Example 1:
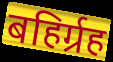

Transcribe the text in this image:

बहिर्ग्रह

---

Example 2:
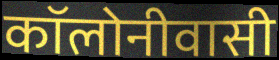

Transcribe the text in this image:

कॉलोनीवासी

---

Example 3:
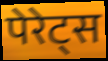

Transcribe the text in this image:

पेरेट्स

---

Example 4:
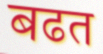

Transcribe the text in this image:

बढत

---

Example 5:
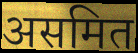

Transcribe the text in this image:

असमित